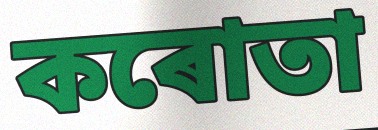
কৰোতা